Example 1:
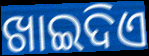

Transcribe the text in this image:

ଖାଇଦିଏ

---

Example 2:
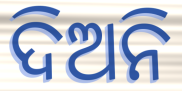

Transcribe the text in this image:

ଦିଅନି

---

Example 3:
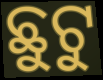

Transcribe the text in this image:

ଛୁଟୁ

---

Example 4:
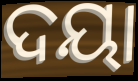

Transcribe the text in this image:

ଦୟା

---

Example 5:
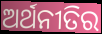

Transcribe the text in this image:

ଅର୍ଥନୀତିର